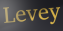
Levey